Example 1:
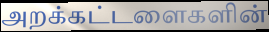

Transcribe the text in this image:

அறக்கட்டளைகளின்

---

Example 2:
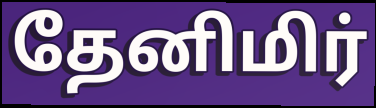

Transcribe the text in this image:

தேனிமிர்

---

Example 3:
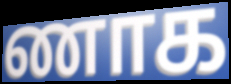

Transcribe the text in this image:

ணாக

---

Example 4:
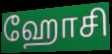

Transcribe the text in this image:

ஹோசி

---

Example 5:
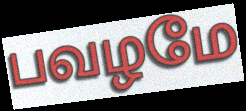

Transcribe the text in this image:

பவழமே